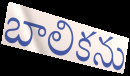
బాలికను